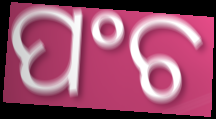
ପଂଚ